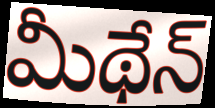
మీథేన్